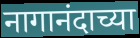
नागानंदाच्या